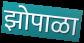
झोपाळा